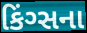
કિંગ્સના